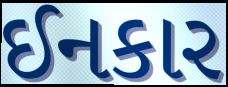
ઈનકાર